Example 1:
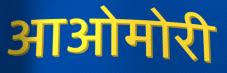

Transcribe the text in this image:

आओमोरी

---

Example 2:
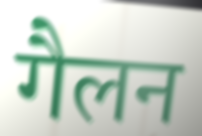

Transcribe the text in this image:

गैलन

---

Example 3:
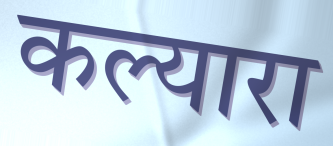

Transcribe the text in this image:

कल्यारा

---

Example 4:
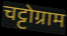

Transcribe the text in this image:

चट्टोग्राम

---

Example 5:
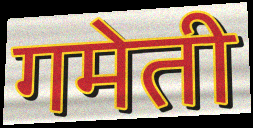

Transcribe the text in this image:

गमेती